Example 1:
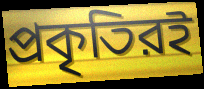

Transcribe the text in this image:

প্রকৃতিরই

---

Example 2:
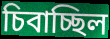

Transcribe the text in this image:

চিবাচ্ছিল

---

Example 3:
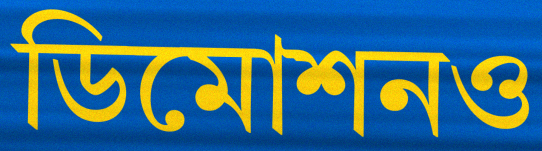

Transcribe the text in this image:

ডিমোশনও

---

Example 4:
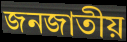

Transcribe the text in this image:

জনজাতীয়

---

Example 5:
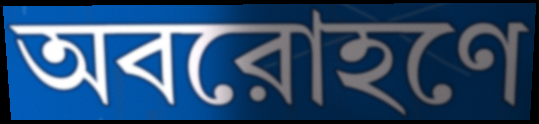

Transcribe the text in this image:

অবরোহণে